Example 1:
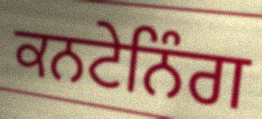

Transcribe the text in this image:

ਕਨਟੇਨਿੰਗ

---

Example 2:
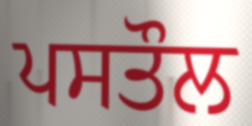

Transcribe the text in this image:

ਪਸਤੌਲ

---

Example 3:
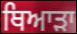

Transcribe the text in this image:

ਥਿਆੜਾ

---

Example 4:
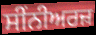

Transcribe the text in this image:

ਸੀਂਨੀਅਰਜ਼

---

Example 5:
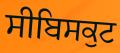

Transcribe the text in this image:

ਸੀਬਿਸਕੁਟ